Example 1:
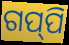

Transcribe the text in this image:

ଗପ୍‌ପି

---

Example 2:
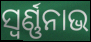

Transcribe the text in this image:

ସ୍ବର୍ଣ୍ଣନାଭ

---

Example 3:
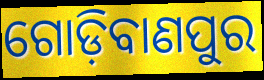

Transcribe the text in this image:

ଗୋଡ଼ିବାଣପୁର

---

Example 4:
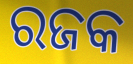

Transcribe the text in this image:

ରଜକ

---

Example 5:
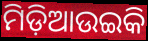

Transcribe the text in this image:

ମିଡ଼ିଆଉଇକି